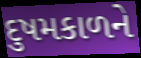
દુષમકાળને